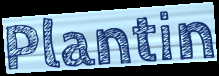
Plantin